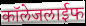
कॉलेजलाईफ